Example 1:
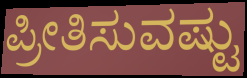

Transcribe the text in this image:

ಪ್ರೀತಿಸುವಷ್ಟು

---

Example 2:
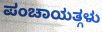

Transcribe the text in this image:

ಪಂಚಾಯತ್ಗಳು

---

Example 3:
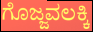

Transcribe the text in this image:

ಗೊಜ್ಜವಲಕ್ಕಿ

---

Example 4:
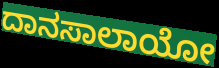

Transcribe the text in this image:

ದಾನಸಾಲಾಯೋ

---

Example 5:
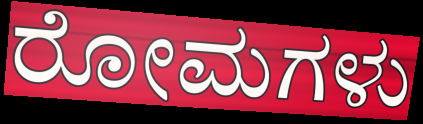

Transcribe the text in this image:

ರೋಮಗಳು